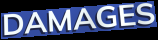
DAMAGES